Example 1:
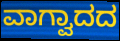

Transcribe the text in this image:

ವಾಗ್ವಾದದ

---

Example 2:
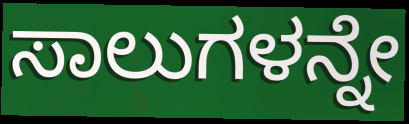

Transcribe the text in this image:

ಸಾಲುಗಳನ್ನೇ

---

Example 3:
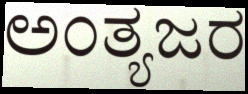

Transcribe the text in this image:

ಅಂತ್ಯಜರ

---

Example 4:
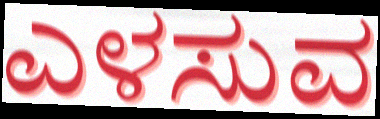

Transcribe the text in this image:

ಎಳಸುವ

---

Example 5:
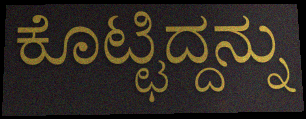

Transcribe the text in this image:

ಕೊಟ್ಟಿದ್ದನ್ನು